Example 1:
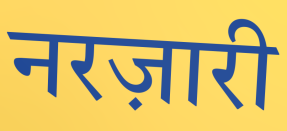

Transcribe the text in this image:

नरज़ारी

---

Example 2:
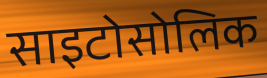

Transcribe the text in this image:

साइटोसोलिक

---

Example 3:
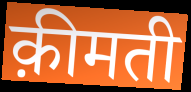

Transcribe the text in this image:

क़ीमती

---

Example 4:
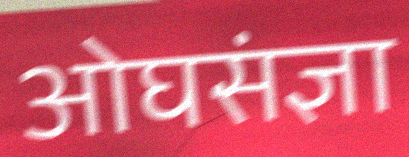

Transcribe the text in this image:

ओघसंज्ञा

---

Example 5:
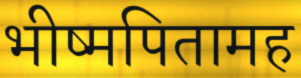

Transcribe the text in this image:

भीष्मपितामह